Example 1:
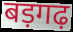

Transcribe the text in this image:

बड़गढ़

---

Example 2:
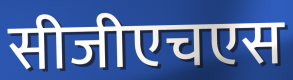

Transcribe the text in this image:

सीजीएचएस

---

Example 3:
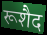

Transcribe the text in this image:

रूशैद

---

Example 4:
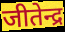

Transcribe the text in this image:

जीतेन्द्र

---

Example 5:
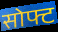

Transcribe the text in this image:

सोफ्ट